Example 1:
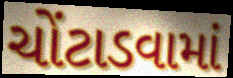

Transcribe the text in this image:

ચોંટાડવામાં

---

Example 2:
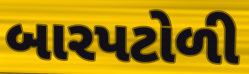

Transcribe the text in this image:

બારપટોળી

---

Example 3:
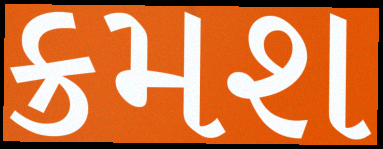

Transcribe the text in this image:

ક્રમશ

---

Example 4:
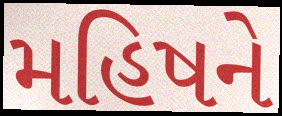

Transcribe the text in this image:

મહિષને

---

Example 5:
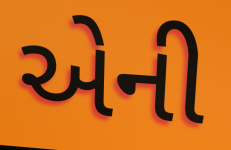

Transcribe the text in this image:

એની